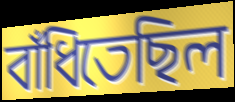
বাঁধিতেছিল